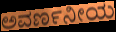
ಅವರ್ಣನೀಯ